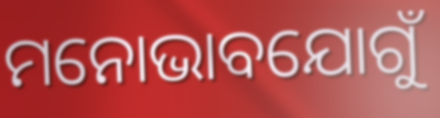
ମନୋଭାବଯୋଗୁଁ